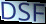
DSF